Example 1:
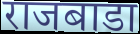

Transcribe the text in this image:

राजबाडा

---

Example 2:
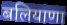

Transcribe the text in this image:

बलियाणा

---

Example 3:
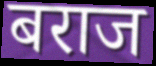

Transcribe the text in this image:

बराज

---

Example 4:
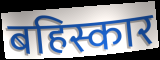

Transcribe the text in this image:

बहिस्कार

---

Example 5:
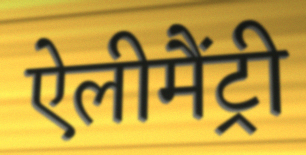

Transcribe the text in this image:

ऐलीमैंट्री